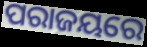
ପରାଜୟରେ